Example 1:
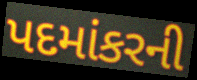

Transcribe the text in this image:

પદમાંકરની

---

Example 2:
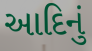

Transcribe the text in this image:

આદિનું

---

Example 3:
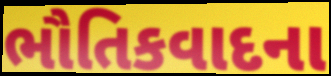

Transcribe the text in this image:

ભૌતિકવાદના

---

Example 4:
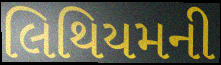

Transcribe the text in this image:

લિથિયમની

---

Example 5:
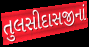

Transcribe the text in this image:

તુલસીદાસજીનાં